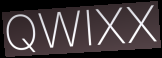
QWIXX